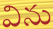
విను